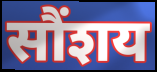
सौंशय